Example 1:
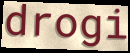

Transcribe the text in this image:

drogi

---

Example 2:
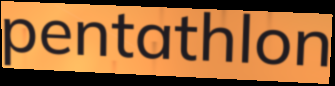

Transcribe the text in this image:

pentathlon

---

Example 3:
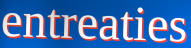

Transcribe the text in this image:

entreaties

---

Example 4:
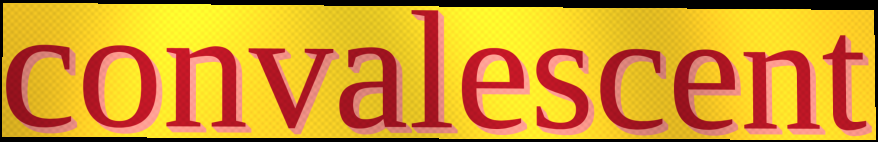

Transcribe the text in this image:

convalescent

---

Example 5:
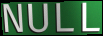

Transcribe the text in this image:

NULL